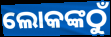
ଲୋକଙ୍କଠୁଁ